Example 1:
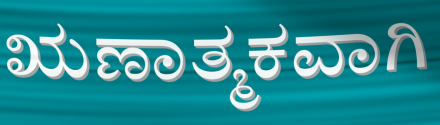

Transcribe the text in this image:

ಋಣಾತ್ಮಕವಾಗಿ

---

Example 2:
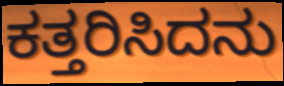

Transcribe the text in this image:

ಕತ್ತರಿಸಿದನು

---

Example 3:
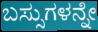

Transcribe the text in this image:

ಬಸ್ಸುಗಳನ್ನೇ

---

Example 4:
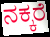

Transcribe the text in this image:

ನಕ್ಕರೆ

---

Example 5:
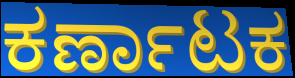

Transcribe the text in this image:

ಕರ್ಣಾಟಕ